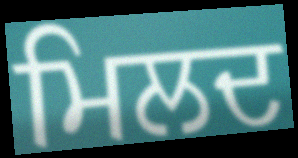
ਮਿਲਦ